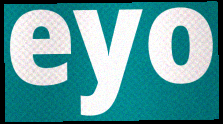
eyo